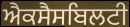
ਐਕਸੈਸਬਿਲਟੀ